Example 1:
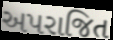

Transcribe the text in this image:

અપરાજિત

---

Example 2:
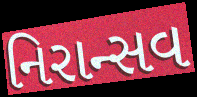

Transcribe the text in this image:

નિરાન્સવ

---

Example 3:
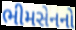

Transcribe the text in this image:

ભીમસેનનો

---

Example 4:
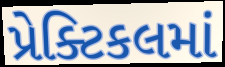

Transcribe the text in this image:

પ્રેક્ટિકલમાં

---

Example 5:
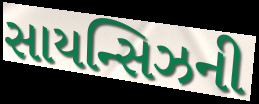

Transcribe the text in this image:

સાયન્સિઝની